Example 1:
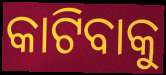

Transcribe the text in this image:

କାଟିବାକୁ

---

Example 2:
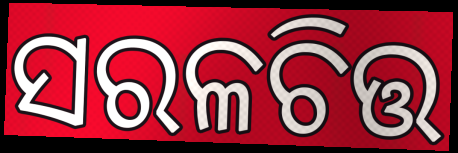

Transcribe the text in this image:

ସରଳଚିତ୍ତ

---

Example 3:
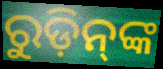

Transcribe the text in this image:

ରୁଡ଼ିନ୍‌ଙ୍କ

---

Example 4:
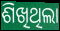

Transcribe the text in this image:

ଶିଖିଥିଲା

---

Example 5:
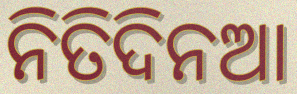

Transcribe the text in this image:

ନିତିଦିନଆ